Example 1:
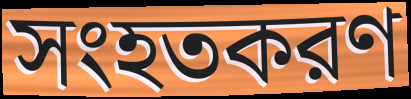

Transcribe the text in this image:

সংহতকরণ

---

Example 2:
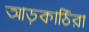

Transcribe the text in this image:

আড়কাঠিরা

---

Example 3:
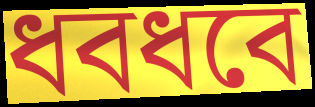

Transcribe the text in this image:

ধবধবে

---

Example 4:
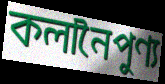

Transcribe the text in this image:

কলানৈপুণ্য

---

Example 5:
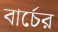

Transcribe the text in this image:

বার্চের